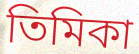
তিমিকা